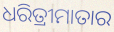
ଧରିତ୍ରୀମାତାର